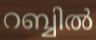
റബ്ബിൽ